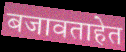
बजावताहेत